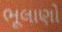
ભૂલાણો